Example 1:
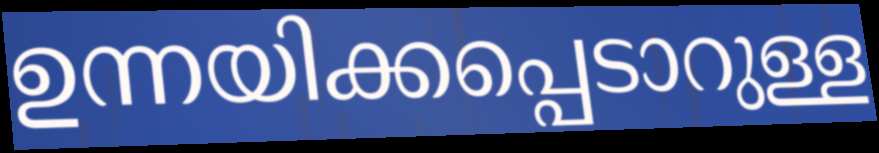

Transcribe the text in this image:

ഉന്നയിക്കപ്പെടാറുള്ള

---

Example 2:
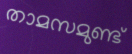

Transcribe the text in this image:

താമസമുണ്ട്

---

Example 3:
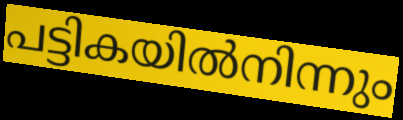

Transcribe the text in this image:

പട്ടികയിൽനിന്നും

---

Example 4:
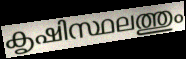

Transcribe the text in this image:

കൃഷിസ്ഥലത്തും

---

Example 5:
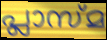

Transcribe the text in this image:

പ്ലാസ്മ